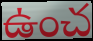
ఉంచ